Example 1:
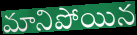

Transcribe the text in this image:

మానిపోయిన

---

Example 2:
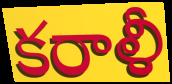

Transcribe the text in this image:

కరాళీ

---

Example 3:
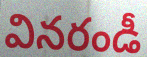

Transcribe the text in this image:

వినరండీ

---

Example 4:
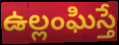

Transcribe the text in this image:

ఉల్లంఘిస్తే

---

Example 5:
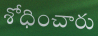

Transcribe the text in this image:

శోధించారు